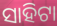
ସାହିଟା